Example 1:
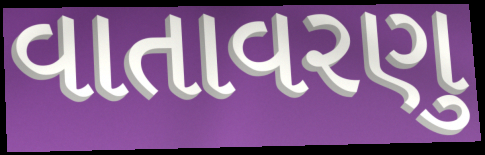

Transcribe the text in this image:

વાતાવરણુ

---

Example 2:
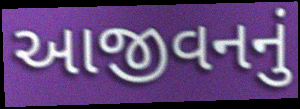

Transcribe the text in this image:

આજીવનનું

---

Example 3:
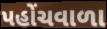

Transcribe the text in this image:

પહોંચવાળા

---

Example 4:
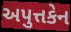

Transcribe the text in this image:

અપુત્તકેન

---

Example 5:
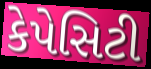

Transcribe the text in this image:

કેપેસિટી